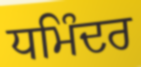
ਧਮਿੰਦਰ